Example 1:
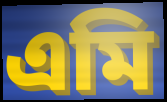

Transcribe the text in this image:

এমি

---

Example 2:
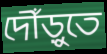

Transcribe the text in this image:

দৌঁড়ুতে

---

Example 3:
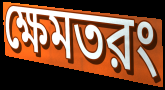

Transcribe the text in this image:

ক্ষেমতরং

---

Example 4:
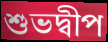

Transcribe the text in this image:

শুভদ্বীপ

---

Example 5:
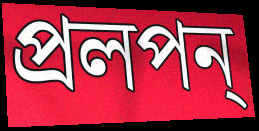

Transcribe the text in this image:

প্রলপন্